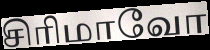
சிரிமாவோ